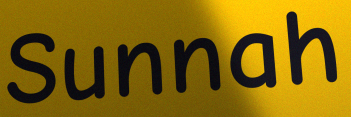
Sunnah